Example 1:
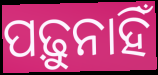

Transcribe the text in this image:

ପଢ଼ୁନାହିଁ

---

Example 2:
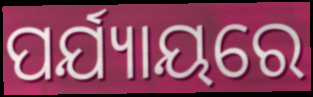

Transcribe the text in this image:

ପର୍ଯ୍ୟାୟରେ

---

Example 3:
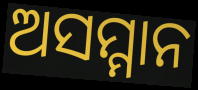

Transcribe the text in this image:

ଅସମ୍ମାନ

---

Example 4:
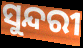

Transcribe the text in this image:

ସୁନ୍ଦରୀ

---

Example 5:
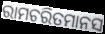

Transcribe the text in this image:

ରାମଚରିତମାନସ